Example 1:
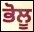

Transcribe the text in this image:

ਭੋਲੂ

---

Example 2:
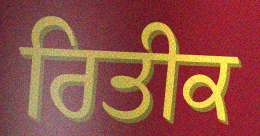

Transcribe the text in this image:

ਰਿਤੀਕ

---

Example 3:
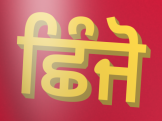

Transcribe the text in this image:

ਛਿੰਜੋ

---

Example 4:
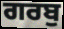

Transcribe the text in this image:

ਗਰਬੁ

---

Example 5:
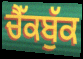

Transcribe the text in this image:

ਚੈੱਕਬੁੱਕ